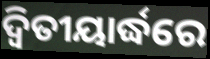
ଦ୍ୱିତୀୟାର୍ଦ୍ଧରେ